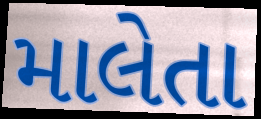
માલેતા